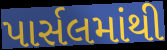
પાર્સલમાંથી